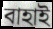
বাহাই